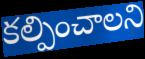
కల్పించాలని